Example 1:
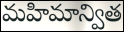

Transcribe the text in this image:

మహిమాన్విత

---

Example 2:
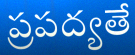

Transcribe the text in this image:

ప్రపద్యతే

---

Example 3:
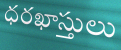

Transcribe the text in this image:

ధరఖాస్తులు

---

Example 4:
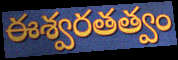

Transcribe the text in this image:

ఈశ్వరతత్వం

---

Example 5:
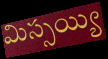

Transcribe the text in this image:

మిస్సయ్యి